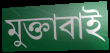
মুক্তাবাই